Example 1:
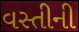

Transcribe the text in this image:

વસ્તીની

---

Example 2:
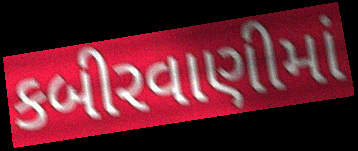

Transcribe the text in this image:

કબીરવાણીમાં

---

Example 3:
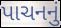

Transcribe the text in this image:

પાચનનું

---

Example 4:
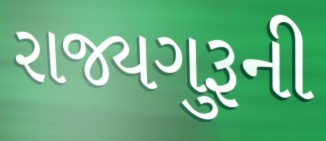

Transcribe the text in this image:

રાજ્યગુરૂની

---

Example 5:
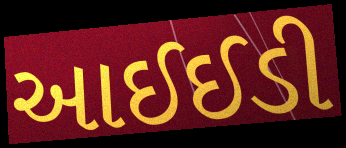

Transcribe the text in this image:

આઈઈડી